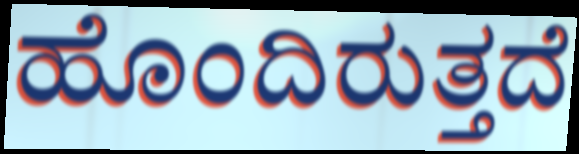
ಹೊಂದಿರುತ್ತದೆ